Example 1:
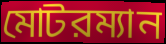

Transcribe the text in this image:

মোটরম্যান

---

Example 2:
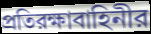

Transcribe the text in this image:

প্রতিরক্ষাবাহিনীর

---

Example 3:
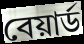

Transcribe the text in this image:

বেয়ার্ড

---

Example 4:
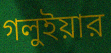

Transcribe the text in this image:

গলুইয়ার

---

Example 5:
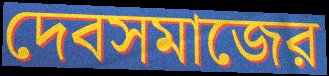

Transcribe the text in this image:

দেবসমাজের